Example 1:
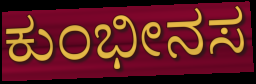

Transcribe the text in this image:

ಕುಂಭೀನಸ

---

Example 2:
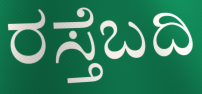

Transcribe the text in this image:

ರಸ್ತೆಬದಿ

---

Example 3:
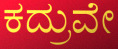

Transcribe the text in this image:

ಕದ್ರುವೇ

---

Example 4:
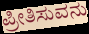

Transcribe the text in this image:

ಪ್ರೀತಿಸುವನು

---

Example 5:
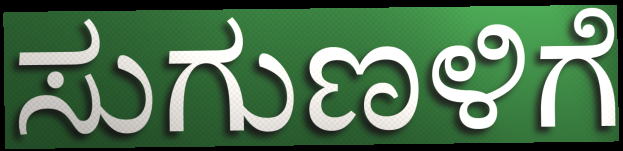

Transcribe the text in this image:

ಸುಗುಣಳಿಗೆ